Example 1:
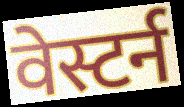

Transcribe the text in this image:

वेस्टर्न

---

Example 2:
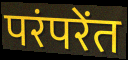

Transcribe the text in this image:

परंपरेंत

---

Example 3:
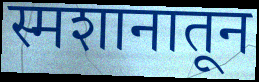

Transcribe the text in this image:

स्मशानातून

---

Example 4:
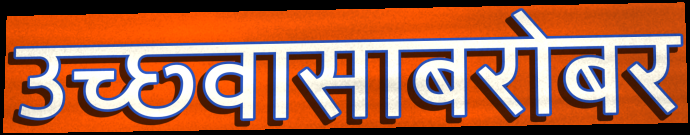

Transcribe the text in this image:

उच्छ्वासाबरोबर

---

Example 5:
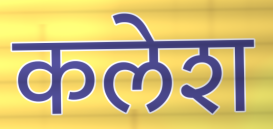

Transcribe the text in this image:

कलेश